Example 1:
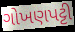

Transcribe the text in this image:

ગોખણપટ્ટી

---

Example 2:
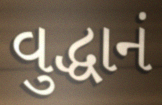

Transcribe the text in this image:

વુદ્ધાનં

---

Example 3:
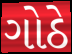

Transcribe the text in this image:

ગોઠે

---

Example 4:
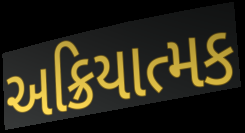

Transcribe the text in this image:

અક્રિયાત્મક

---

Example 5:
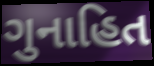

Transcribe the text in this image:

ગુનાહિત